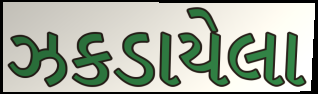
ઝકડાયેલા